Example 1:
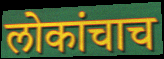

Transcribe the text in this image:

लोकांचाच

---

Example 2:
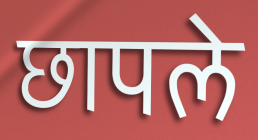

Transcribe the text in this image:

छापले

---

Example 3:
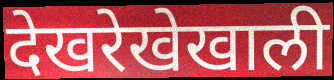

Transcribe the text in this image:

देखरेखेखाली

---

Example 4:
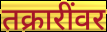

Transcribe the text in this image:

तक्रारींवर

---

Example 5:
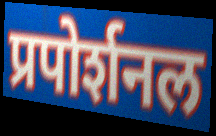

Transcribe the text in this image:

प्रपोर्शनल